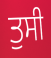
ਤੁਸੀ